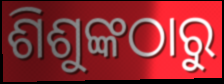
ଶିଶୁଙ୍କଠାରୁ